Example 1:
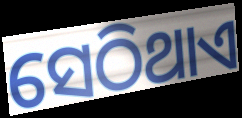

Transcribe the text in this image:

ସେଠିଥାଏ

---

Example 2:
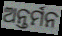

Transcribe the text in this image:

ଅନ୍ତର୍ମନ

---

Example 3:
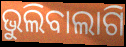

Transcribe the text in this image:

ଭୁଲିବାଲାଗି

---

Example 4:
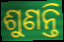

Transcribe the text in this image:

ଶୁଣନ୍ତି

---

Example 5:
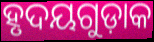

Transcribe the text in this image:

ହୃଦୟଗୁଡ଼ାକ